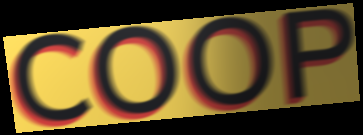
COOP